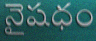
నైషధం